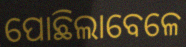
ପୋଛିଲାବେଳେ